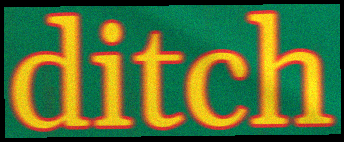
ditch